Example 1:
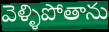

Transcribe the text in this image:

వెళ్ళిపోతాను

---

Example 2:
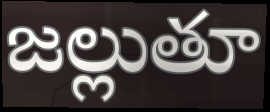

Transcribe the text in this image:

జల్లుతూ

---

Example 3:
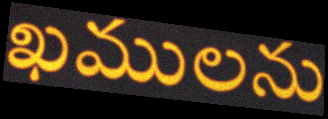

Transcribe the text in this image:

ఖములను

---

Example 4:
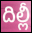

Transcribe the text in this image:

దిల్లీ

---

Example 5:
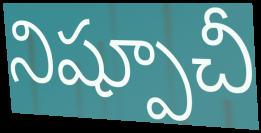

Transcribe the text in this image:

నిష్పూచీ